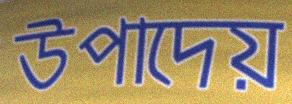
উপাদেয়